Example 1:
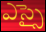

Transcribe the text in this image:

ఎస్సై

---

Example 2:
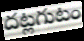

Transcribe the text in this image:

దట్లగుటం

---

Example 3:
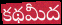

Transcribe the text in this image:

కథమీద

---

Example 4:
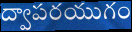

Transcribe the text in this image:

ద్వాపరయుగం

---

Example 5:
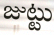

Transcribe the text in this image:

జుట్టు